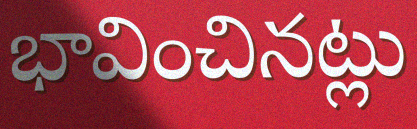
భావించినట్లు